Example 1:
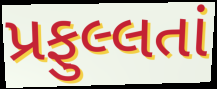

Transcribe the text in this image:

પ્રફુલ્લતાં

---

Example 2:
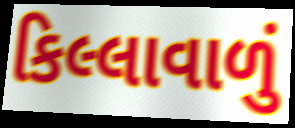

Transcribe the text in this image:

કિલ્લાવાળું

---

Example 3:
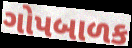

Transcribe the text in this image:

ગોપબાળક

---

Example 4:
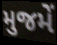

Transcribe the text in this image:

મુજમેં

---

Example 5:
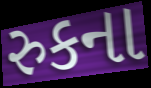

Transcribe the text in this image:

રુકના